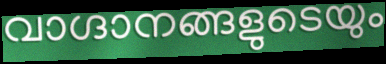
വാഗ്ദാനങ്ങളുടെയും